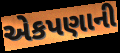
એકપણાની